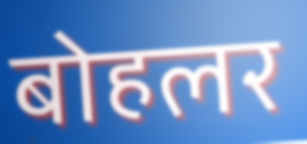
बोहलर